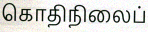
கொதிநிலைப்